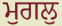
ਮੁਗਲੁ